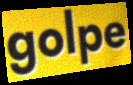
golpe